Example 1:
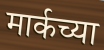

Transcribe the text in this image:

मार्कच्या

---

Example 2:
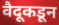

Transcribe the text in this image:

वैदूकडून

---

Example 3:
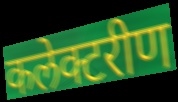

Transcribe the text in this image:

कलेक्टरीण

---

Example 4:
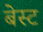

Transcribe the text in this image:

बेस्ट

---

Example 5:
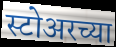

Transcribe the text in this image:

स्टोअरच्या